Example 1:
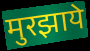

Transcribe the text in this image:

मुरझाये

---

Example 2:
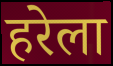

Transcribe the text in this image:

हरेला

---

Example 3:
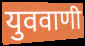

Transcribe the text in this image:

युववाणी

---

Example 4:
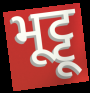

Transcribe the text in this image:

भूट्टू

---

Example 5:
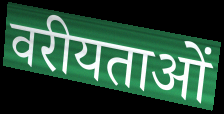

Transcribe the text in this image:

वरीयताओं